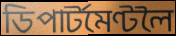
ডিপাৰ্টমেণ্টলৈ